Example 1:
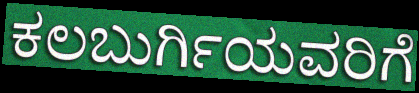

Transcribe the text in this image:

ಕಲಬುರ್ಗಿಯವರಿಗೆ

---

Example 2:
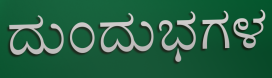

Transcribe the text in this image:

ದುಂದುಭಗಳ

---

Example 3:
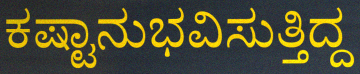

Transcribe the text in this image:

ಕಷ್ಟಾನುಭವಿಸುತ್ತಿದ್ದ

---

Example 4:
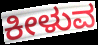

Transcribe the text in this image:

ಕೀಳುವ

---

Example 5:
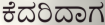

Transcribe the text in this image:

ಕೆದರಿದಾಗ